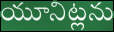
యూనిట్లను